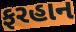
ફરહાન